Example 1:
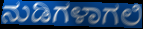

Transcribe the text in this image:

ನುಡಿಗಳಾಗಲಿ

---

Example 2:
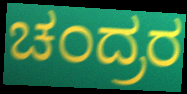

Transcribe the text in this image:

ಚಂದ್ರರ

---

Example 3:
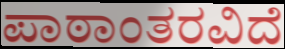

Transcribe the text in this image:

ಪಾಠಾಂತರವಿದೆ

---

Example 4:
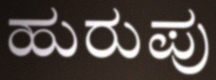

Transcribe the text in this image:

ಹುರುಪು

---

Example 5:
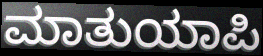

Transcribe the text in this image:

ಮಾತುಯಾಪಿ